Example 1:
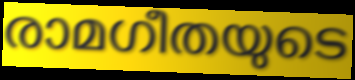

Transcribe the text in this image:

രാമഗീതയുടെ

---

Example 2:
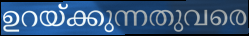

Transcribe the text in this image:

ഉറയ്ക്കുന്നതുവരെ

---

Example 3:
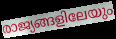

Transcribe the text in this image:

രാജ്യങ്ങളിലേയും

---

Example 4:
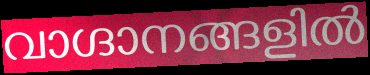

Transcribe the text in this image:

വാഗ്ദാനങ്ങളിൽ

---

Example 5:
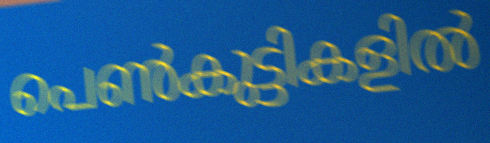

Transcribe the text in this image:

പെൺകുട്ടികളിൽ